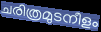
ചരിത്രമുടനീളം